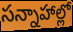
సన్నాహాల్లో